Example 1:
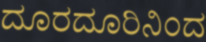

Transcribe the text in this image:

ದೂರದೂರಿನಿಂದ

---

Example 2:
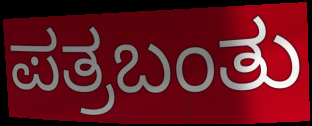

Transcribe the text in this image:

ಪತ್ರಬಂತು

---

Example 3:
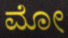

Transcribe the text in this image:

ಮೋ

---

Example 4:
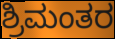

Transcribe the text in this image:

ಶ್ರಿಮಂತರ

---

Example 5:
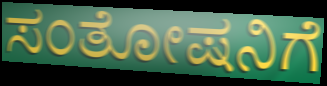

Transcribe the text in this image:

ಸಂತೋಷನಿಗೆ